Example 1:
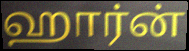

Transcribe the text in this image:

ஹார்ன்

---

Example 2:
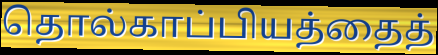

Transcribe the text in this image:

தொல்காப்பியத்தைத்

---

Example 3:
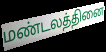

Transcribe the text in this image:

மண்டலத்தினை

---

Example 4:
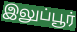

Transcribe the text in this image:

இலுப்பூர்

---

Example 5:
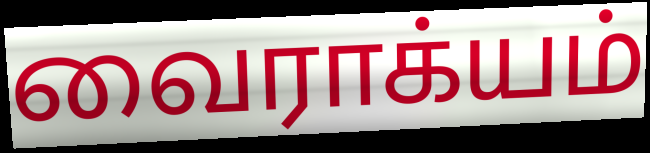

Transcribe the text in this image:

வைராக்யம்